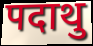
पदाथु